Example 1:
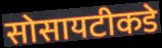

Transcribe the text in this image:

सोसायटीकडे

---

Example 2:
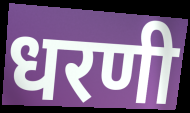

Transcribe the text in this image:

धरणी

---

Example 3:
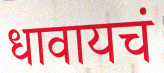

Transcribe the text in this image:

धावायचं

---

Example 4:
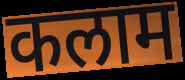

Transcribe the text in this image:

कलाम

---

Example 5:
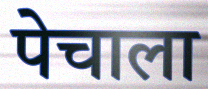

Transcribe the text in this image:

पेचाला